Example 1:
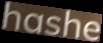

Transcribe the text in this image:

hashe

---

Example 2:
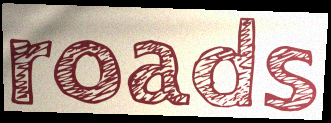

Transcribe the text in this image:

roads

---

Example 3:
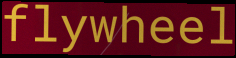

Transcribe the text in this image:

flywheel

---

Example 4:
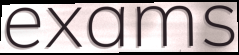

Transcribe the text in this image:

exams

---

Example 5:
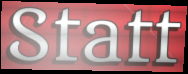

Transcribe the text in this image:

Statt